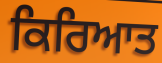
ਕਿਰਿਆਤ